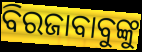
ବିରଜାବାବୁଙ୍କୁ